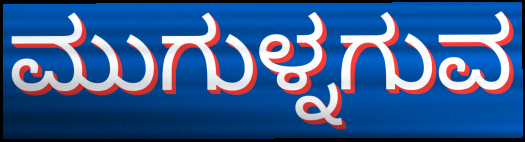
ಮುಗುಳ್ನಗುವ